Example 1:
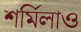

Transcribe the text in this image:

শর্মিলাও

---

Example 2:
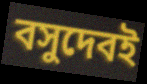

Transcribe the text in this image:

বসুদেবই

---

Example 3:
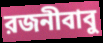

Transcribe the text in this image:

রজনীবাবু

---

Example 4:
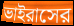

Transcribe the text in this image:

ভাইরাসের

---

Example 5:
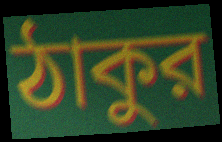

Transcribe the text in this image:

ঠাকুর